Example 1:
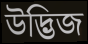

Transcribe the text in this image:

উদ্ভিজ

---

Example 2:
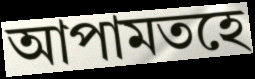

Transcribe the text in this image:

আপামতহে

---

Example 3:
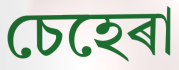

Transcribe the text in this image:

চেহেৰা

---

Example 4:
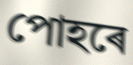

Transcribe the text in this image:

পোহৰে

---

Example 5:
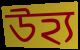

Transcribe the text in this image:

উহ্য